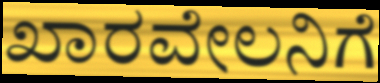
ಖಾರವೇಲನಿಗೆ